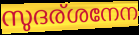
സുദര്ശനേന